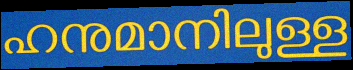
ഹനുമാനിലുള്ള